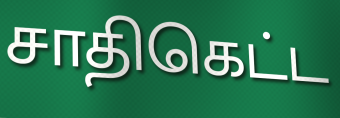
சாதிகெட்ட